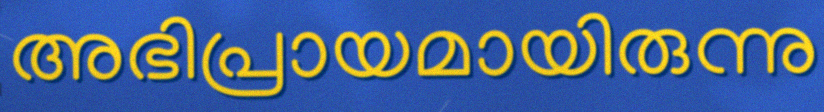
അഭിപ്രായമായിരുന്നു